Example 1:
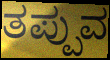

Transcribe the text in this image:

ತಪ್ಪುವ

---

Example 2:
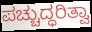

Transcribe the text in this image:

ಪಚ್ಚುದ್ಧರಿತ್ವಾ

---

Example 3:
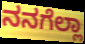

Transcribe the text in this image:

ನನಗೆಲ್ಲಾ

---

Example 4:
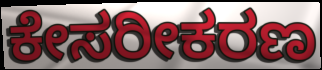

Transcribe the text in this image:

ಕೇಸರೀಕರಣ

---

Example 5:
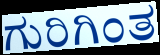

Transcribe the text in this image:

ಗುರಿಗಿಂತ